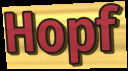
Hopf